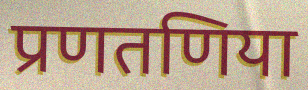
प्रणतणिया